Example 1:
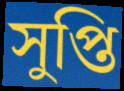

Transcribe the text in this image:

সুপ্তি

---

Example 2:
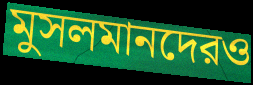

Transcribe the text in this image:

মুসলমানদেরও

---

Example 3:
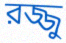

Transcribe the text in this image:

রজ্জু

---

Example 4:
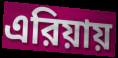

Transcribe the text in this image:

এরিয়ায়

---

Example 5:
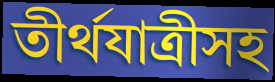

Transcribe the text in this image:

তীর্থযাত্রীসহ